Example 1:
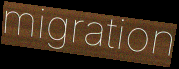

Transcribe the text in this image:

migration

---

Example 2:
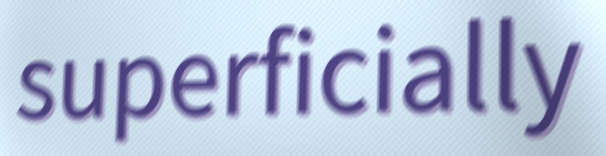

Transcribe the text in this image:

superficially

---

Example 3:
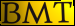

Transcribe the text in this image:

BMT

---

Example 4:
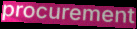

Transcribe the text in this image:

procurement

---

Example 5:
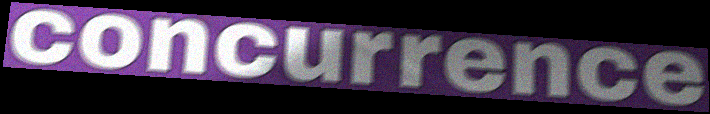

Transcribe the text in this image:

concurrence